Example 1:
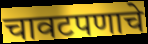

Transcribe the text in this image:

चावटपणाचे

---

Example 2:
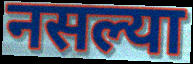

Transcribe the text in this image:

नसल्या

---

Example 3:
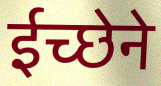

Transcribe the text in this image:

ईच्छेने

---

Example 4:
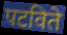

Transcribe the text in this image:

पटविते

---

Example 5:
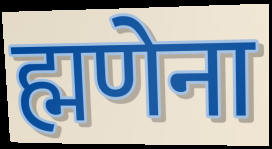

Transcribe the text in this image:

ह्मणेना